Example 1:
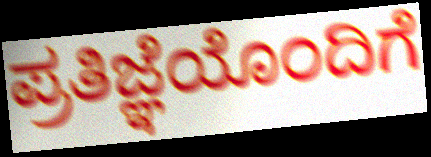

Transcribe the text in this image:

ಪ್ರತಿಜ್ಞೆಯೊಂದಿಗೆ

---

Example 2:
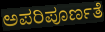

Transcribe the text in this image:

ಅಪರಿಪೂರ್ಣತೆ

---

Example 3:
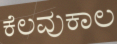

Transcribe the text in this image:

ಕೆಲವುಕಾಲ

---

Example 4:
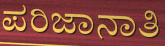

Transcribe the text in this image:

ಪರಿಜಾನಾತಿ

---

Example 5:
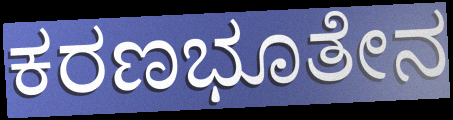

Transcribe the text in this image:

ಕರಣಭೂತೇನ